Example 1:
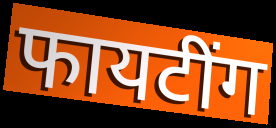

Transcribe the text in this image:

फायटींग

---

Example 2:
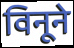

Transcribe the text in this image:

विनूने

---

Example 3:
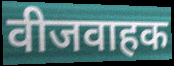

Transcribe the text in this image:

वीजवाहक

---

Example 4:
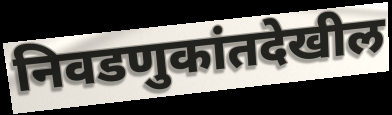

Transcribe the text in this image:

निवडणुकांतदेखील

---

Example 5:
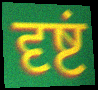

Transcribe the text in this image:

दृष्टं